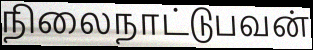
நிலைநாட்டுபவன்